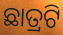
ଛାତ୍ରଟି